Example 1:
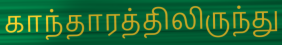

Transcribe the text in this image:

காந்தாரத்திலிருந்து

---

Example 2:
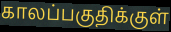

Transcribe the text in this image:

காலப்பகுதிக்குள்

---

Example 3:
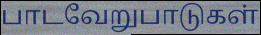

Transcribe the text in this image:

பாடவேறுபாடுகள்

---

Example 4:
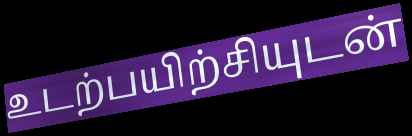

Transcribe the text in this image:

உடற்பயிற்சியுடன்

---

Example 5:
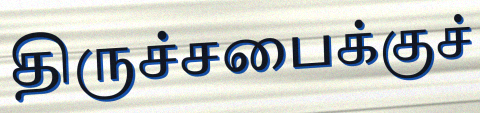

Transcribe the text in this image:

திருச்சபைக்குச்